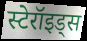
स्टेरॉइड्स